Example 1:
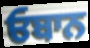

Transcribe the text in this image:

ਓਬਾਨ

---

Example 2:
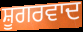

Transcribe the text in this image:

ਸ਼ੂਗਰਵਾਦ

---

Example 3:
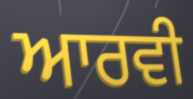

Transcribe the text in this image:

ਆਰਵੀ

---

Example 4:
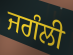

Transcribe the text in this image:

ਜਗੰਲੀ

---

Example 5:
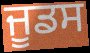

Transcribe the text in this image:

ਜੂਡਸ